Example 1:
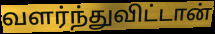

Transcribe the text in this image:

வளர்ந்துவிட்டான்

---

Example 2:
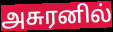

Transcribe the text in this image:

அசுரனில்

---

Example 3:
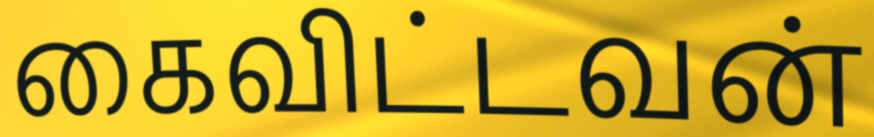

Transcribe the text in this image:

கைவிட்டவன்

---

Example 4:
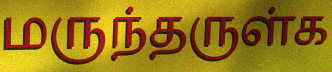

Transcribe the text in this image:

மருந்தருள்க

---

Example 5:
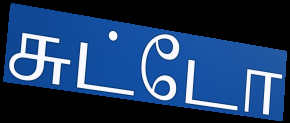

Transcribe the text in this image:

சுட்டோ